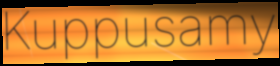
Kuppusamy